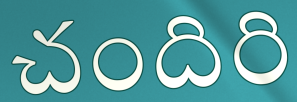
చందిరి